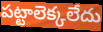
పట్టాలెక్కలేదు